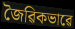
জৈৱিকভাৱে